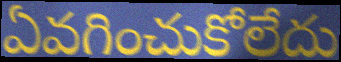
ఏవగించుకోలేదు